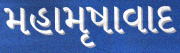
મહામૃષાવાદ